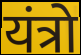
यंत्रो